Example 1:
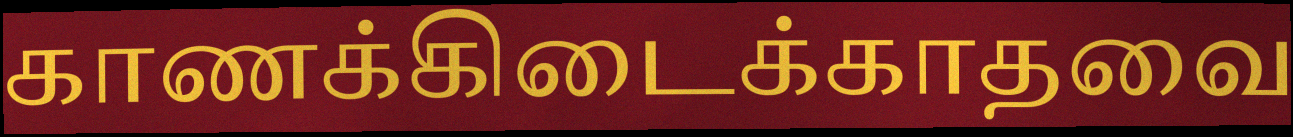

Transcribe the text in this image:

காணக்கிடைக்காதவை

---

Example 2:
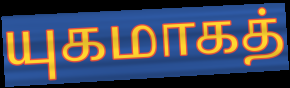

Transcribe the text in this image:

யுகமாகத்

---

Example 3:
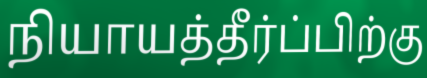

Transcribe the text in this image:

நியாயத்தீர்ப்பிற்கு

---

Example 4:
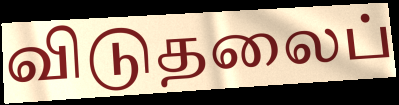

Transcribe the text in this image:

விடுதலைப்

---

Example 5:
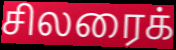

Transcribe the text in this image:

சிலரைக்